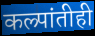
कल्पांतीही